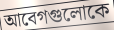
আবেগগুলোকে